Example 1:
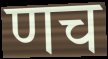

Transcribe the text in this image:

णच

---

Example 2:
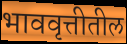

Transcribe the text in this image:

भाववृत्तीतील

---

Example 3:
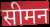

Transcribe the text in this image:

सीमन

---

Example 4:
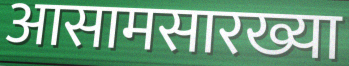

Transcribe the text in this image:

आसामसारख्या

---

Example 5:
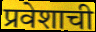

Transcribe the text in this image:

प्रवेशाची